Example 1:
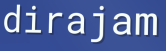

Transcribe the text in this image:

dirajam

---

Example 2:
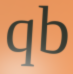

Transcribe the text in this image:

qb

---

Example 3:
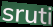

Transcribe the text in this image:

sruti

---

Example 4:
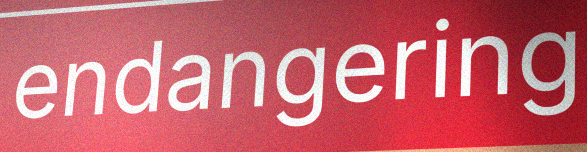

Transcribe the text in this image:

endangering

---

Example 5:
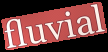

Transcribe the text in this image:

fluvial